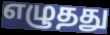
எழுதது